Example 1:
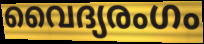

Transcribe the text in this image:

വൈദ്യരംഗം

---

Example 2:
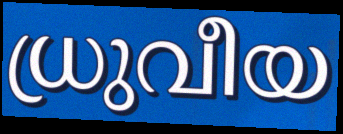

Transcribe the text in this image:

ധ്രുവീയ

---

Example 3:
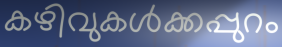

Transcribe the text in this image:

കഴിവുകൾക്കപ്പുറം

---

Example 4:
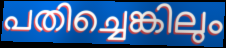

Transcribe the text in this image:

പതിച്ചെങ്കിലും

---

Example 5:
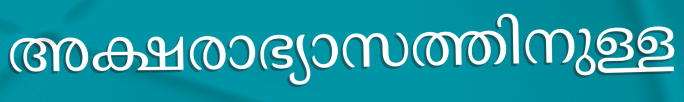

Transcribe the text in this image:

അക്ഷരാഭ്യാസത്തിനുള്ള